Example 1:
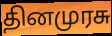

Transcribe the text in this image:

தினமுரசு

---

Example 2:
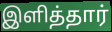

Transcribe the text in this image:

இளித்தார்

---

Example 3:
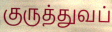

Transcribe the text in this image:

குருத்துவப்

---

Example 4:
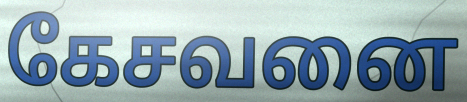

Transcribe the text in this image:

கேசவனை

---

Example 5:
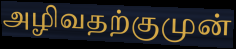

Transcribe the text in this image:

அழிவதற்குமுன்